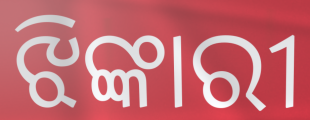
ଝିଙ୍କାରୀ